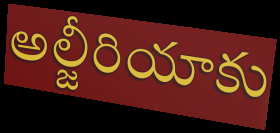
అల్జీరియాకు